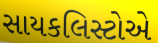
સાયકલિસ્ટોએ